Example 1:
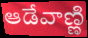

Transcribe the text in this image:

ఆడేవాణ్ణి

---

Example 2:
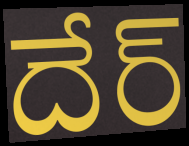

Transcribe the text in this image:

దేర్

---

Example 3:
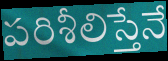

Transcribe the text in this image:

పరిశీలిస్తేనే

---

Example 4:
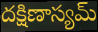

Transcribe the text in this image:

దక్షిణాస్యమ్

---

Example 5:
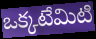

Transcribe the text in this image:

ఒక్కటేమిటి